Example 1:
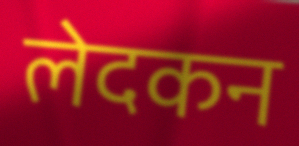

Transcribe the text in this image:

लेदकन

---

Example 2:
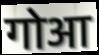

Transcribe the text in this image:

गोआ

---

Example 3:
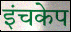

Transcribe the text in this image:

इंचकेप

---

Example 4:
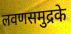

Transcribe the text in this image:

लवणसमुद्रके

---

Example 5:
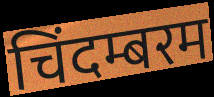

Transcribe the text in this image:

चिंदम्बरम